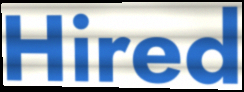
Hired